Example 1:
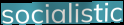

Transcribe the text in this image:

socialistic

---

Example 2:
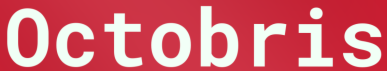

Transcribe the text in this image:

Octobris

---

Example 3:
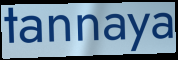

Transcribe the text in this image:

tannaya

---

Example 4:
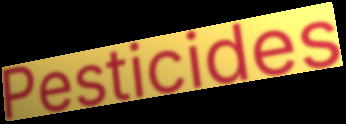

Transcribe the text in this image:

Pesticides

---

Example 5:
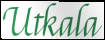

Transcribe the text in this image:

Utkala